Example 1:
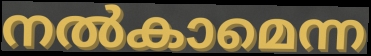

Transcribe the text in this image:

നൽകാമെന്ന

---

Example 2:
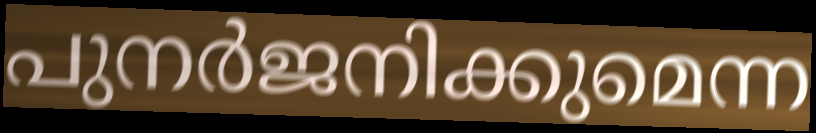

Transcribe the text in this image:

പുനർജനിക്കുമെന്ന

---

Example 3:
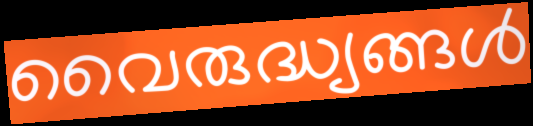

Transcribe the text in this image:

വൈരുദ്ധ്യങ്ങൾ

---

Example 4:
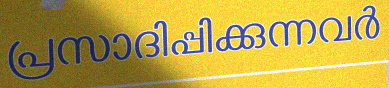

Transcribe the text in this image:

പ്രസാദിപ്പിക്കുന്നവർ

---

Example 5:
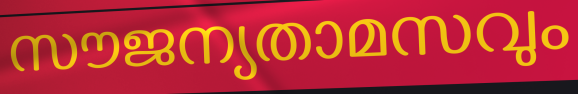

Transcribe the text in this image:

സൗജന്യതാമസവും